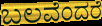
ಬಲವೆಂದರೆ